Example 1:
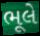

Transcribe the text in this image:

ભૂલે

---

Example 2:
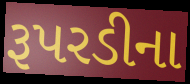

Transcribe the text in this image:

રૂપરડીના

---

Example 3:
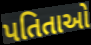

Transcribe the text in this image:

પતિતાઓ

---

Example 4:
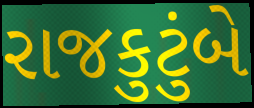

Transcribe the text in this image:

રાજકુટુંબે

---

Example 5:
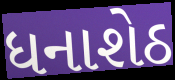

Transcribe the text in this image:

ધનાશેઠ